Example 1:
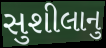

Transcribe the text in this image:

સુશીલાનુ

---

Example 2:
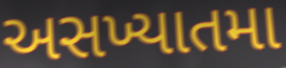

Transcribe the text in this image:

અસખ્યાતમા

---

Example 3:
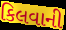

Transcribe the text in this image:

કિલવાની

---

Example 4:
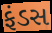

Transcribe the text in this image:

ફંડસ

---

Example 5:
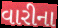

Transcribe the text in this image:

વારીના